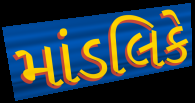
માંડલિકે